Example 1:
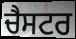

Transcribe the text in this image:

ਚੈਸਟਰ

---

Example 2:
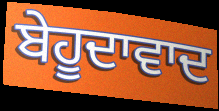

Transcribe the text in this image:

ਬੇਹੂਦਾਵਾਦ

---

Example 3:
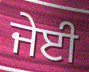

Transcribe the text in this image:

ਜੇਈ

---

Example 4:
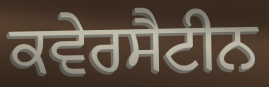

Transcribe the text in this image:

ਕਵੇਰਸੈਟੀਨ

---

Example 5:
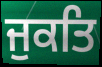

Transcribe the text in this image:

ਜੁਕਤਿ